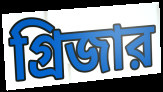
গ্রিজার